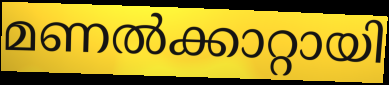
മണൽക്കാറ്റായി